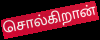
சொல்கிறான்